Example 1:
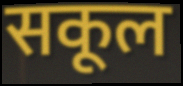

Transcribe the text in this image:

सकूल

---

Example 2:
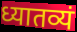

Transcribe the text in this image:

ध्यातव्यं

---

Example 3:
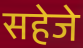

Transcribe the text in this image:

सहेजे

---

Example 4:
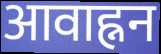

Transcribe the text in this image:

आवाह्नन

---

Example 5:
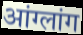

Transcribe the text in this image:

आंग्लांग